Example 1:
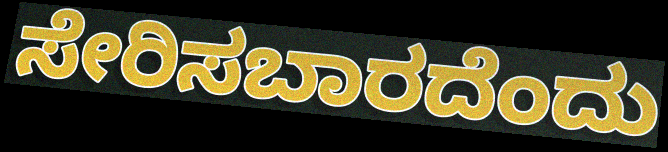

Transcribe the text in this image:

ಸೇರಿಸಬಾರದೆಂದು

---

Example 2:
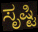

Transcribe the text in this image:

ಸೃಷ್ಟಿ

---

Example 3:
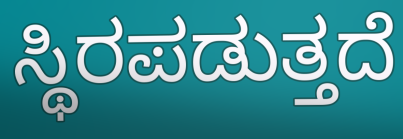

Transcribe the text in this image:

ಸ್ಥಿರಪಡುತ್ತದೆ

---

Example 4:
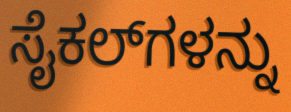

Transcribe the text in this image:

ಸೈಕಲ್‌ಗಳನ್ನು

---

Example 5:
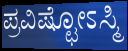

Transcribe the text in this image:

ಪ್ರವಿಷ್ಟೋಽಸ್ಮಿ